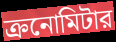
ক্রনোমিটার